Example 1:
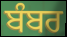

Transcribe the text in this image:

ਬੰਬਰ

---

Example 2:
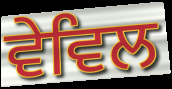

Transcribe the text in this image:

ਵੇਵਿਲ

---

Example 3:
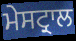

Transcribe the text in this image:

ਮੇਸਟ੍ਰਾਲ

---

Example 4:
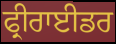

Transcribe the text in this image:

ਫ੍ਰੀਰਾਈਡਰ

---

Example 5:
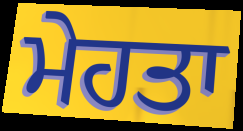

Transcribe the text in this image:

ਮੇਹਤਾ